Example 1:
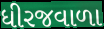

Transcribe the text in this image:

ધીરજવાળા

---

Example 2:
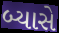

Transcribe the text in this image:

બ્યાસે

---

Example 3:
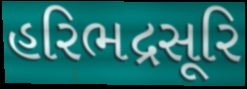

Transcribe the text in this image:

હરિભદ્રસૂરિ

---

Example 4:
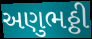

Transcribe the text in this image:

અણુભઠ્ઠી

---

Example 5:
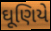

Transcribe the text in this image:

ઘૂણિયે